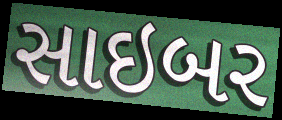
સાઇબર